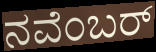
ನವೆಂಬರ್